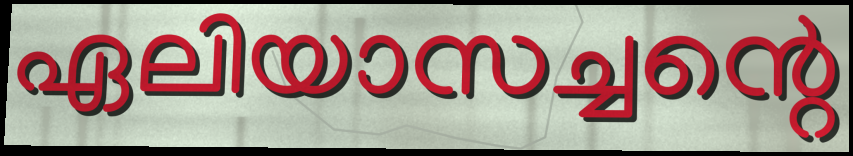
ഏലിയാസച്ചന്റെ